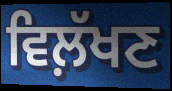
ਵਿਲ਼ੱਖਣ